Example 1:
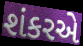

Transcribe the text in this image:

શંકરએ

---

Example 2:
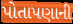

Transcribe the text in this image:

પોતાપણાની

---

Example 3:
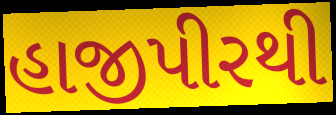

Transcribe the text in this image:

હાજીપીરથી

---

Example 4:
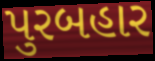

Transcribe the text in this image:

પુરબહાર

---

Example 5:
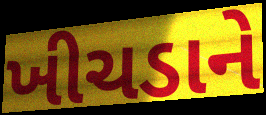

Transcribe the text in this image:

ખીચડાને